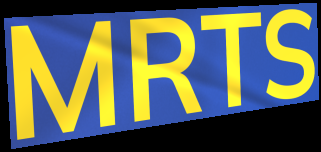
MRTS